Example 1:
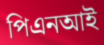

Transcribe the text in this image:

পিএনআই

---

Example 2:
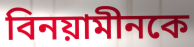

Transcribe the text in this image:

বিনয়ামীনকে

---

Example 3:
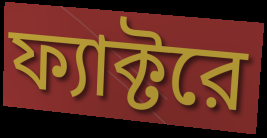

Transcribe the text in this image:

ফ্যাক্টরে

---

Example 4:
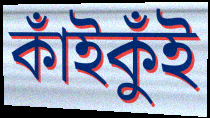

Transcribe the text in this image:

কাঁইকুঁই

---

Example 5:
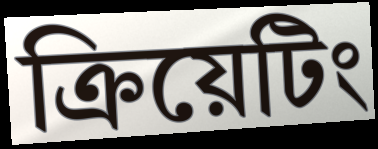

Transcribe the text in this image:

ক্রিয়েটিং